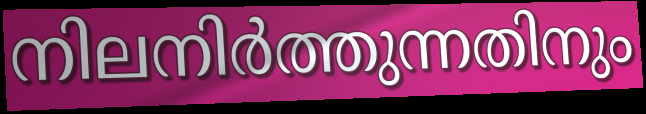
നിലനിർത്തുന്നതിനും